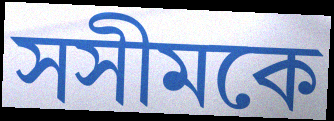
সসীমকে